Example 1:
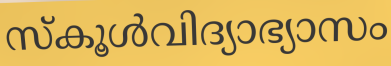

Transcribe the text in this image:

സ്കൂൾവിദ്യാഭ്യാസം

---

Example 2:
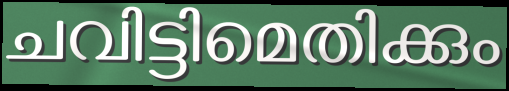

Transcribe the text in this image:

ചവിട്ടിമെതിക്കും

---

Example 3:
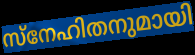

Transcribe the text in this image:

സ്നേഹിതനുമായി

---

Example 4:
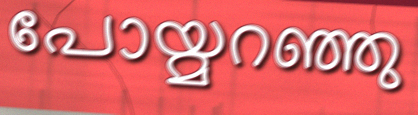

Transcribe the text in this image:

പോയ്മറഞ്ഞു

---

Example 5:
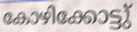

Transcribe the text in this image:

കോഴിക്കോട്ടു്